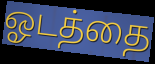
ஓடத்தை